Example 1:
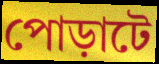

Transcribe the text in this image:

পোড়াটে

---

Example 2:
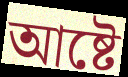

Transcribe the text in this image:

আষ্টে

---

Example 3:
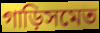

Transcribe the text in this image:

গাড়িসমেত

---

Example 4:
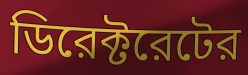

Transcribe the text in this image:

ডিরেক্টরেটের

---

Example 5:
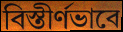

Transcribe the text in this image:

বিস্তীর্ণভাবে